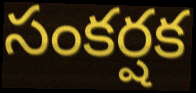
సంకర్షక